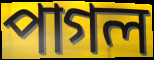
পাগল